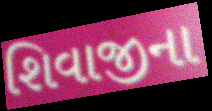
શિવાજીના